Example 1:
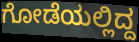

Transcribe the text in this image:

ಗೋಡೆಯಲ್ಲಿದ್ದ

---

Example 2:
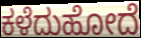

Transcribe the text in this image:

ಕಳೆದುಹೋದೆ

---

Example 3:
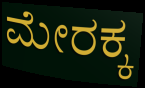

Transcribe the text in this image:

ಮೇರಕ್ಕ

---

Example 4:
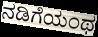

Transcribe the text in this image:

ನಡಿಗೆಯಂಥ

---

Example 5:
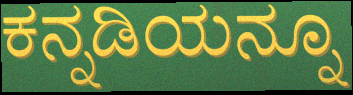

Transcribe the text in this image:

ಕನ್ನಡಿಯನ್ನೂ